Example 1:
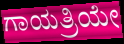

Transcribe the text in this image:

ಗಾಯತ್ರಿಯೇ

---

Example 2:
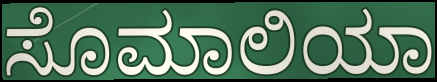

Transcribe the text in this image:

ಸೊಮಾಲಿಯಾ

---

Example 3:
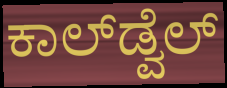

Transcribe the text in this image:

ಕಾಲ್‌ಡ್ವೆಲ್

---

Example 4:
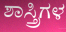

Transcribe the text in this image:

ಶಾಸ್ತ್ರಿಗಳ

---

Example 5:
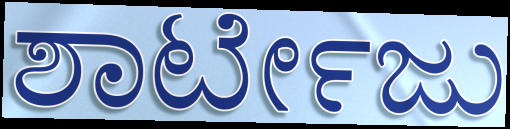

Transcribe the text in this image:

ಶಾರ್ಟೇಜು